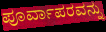
ಪೂರ್ವಾಪರವನ್ನು